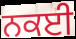
ਨਕਈ